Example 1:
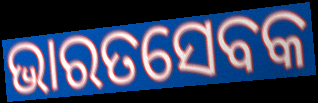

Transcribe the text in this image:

ଭାରତସେବକ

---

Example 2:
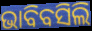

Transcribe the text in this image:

ଭାବିବସିଲି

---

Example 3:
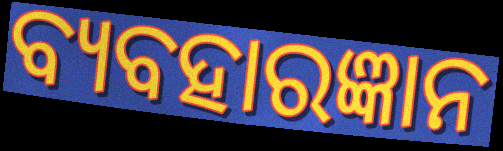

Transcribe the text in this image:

ବ୍ୟବହାରଜ୍ଞାନ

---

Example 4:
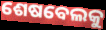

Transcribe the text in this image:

ଶେଷବେଲକୁ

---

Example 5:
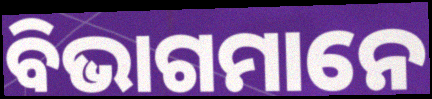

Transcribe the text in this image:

ବିଭାଗମାନେ